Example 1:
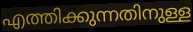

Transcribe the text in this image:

എത്തിക്കുന്നതിനുള്ള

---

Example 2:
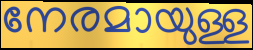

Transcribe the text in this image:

നേരമായുള്ള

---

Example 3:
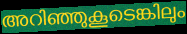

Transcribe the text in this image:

അറിഞ്ഞുകൂടെങ്കിലും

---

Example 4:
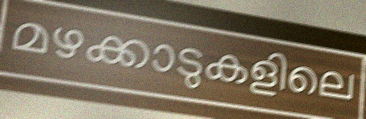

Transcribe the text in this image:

മഴക്കാടുകളിലെ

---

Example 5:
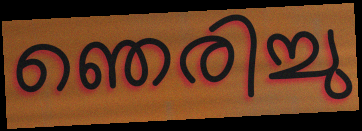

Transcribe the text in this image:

ഞെരിച്ചു